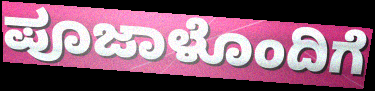
ಪೂಜಾಳೊಂದಿಗೆ